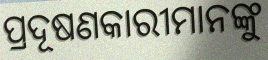
ପ୍ରଦୂଷଣକାରୀମାନଙ୍କୁ